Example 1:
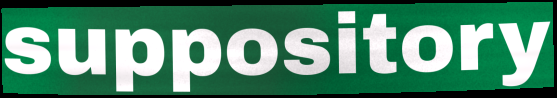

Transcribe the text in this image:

suppository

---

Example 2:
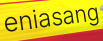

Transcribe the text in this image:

eniasang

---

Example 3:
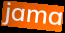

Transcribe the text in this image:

jama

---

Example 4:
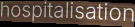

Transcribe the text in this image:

hospitalisation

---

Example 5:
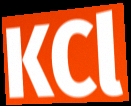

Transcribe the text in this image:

KCl